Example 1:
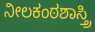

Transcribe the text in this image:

ನೀಲಕಂಠಶಾಸ್ತ್ರಿ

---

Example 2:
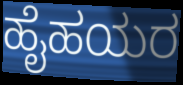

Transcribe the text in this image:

ಹೈಹಯರ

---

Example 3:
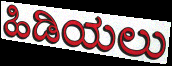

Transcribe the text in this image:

ಹಿಡಿಯಲು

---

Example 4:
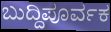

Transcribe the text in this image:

ಬುದ್ದಿಪೂರ್ವಕ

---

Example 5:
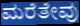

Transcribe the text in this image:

ಮರೆತೇವು